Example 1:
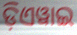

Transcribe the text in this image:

ଡ଼ିଏୱାଇ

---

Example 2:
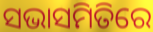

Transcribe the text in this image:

ସଭାସମିତିରେ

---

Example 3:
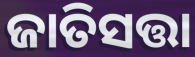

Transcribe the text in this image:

ଜାତିସତ୍ତା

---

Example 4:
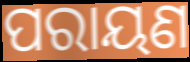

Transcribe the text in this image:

ପରାୟଣ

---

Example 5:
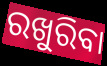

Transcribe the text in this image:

ରଖୁରିବା